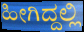
ಹೀಗಿದ್ದಲ್ಲಿ